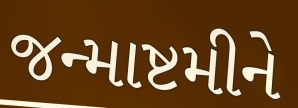
જન્માષ્ટમીને